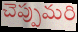
చెప్పుమరి